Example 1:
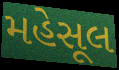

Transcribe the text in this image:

મહેસૂલ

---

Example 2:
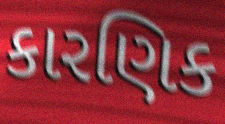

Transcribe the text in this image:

કારણિક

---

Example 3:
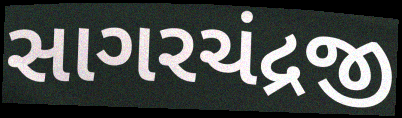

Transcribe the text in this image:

સાગરચંદ્રજી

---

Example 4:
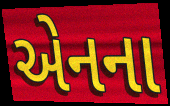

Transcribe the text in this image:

એનના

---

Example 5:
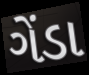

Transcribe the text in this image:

ગેંડા